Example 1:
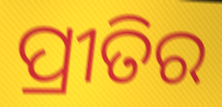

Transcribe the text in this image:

ପ୍ରୀତିର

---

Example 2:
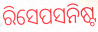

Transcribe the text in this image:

ରିସେପସନିଷ୍ଟ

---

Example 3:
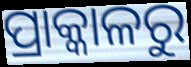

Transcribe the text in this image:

ପ୍ରାକ୍କାଳରୁ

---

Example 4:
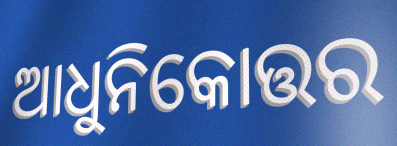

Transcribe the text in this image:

ଆଧୁନିକୋତ୍ତର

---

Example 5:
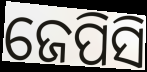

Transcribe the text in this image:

ଜେପିସି